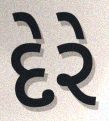
દેરે